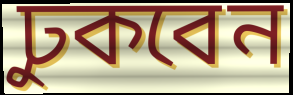
ঢুকবেন